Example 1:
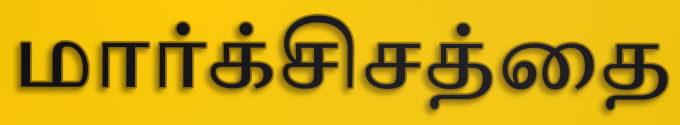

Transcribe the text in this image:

மார்க்சிசத்தை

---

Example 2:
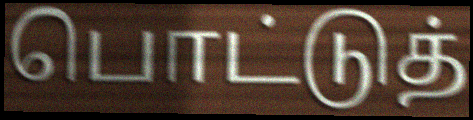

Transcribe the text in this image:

பொட்டுத்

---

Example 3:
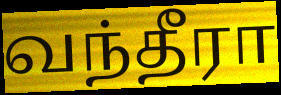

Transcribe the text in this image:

வந்தீரா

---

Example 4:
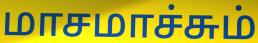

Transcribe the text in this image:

மாசமாச்சும்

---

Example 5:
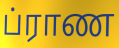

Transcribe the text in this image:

ப்ராண